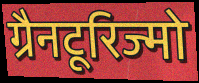
ग्रैनटूरिज्मो